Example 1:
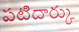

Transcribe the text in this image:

పటిదార్కు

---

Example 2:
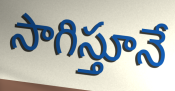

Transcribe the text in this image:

సాగిస్తూనే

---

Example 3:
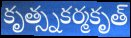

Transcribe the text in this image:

కృత్స్నకర్మకృత్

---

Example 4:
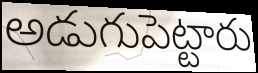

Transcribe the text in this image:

అడుగుపెట్టారు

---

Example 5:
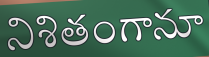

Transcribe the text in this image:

నిశితంగానూ